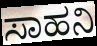
ಸಾಹನಿ